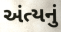
અંત્યનું